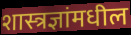
शास्त्रज्ञांमधील